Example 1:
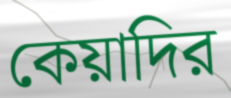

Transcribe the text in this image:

কেয়াদির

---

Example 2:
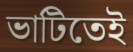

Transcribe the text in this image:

ভাটিতেই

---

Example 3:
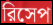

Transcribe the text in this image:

রিসেপ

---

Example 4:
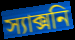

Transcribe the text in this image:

স্যাক্সনি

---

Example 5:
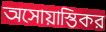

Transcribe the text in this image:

অসোয়াস্তিকর